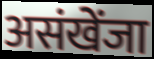
असंखेंजा